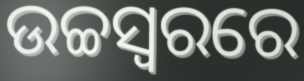
ଉଚ୍ଚସ୍ଵରରେ